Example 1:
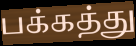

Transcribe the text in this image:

பக்கத்து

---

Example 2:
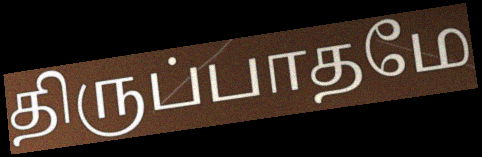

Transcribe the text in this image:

திருப்பாதமே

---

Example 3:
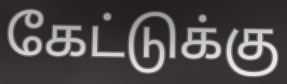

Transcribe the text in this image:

கேட்டுக்கு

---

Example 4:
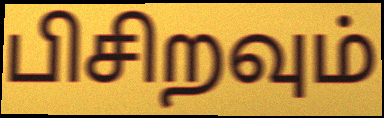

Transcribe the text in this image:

பிசிறவும்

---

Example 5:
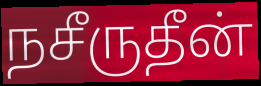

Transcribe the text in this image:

நசீருதீன்